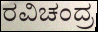
ರವಿಚಂದ್ರ